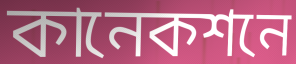
কানেকশনে